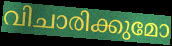
വിചാരിക്കുമോ